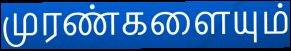
முரண்களையும்